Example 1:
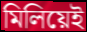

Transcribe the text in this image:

মিলিয়েই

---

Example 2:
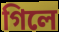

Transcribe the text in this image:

গিলে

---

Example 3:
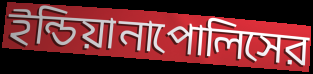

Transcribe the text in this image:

ইন্ডিয়ানাপোলিসের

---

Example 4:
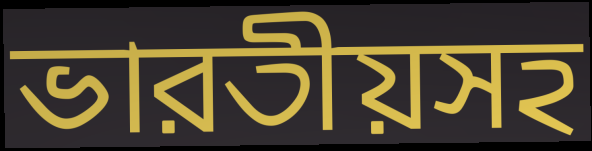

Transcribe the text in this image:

ভারতীয়সহ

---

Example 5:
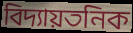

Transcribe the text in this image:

বিদ্যায়তনিক